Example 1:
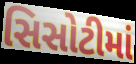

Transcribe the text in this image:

સિસોટીમાં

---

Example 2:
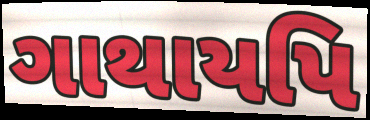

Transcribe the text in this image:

ગાથાયપિ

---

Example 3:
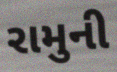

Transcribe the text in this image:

રામુની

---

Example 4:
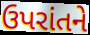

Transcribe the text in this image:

ઉપરાંતને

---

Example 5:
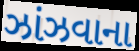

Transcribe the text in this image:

ઝાંઝવાના